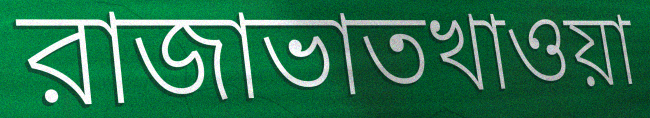
রাজাভাতখাওয়া